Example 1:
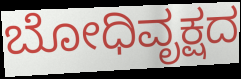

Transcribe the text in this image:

ಬೋಧಿವೃಕ್ಷದ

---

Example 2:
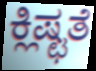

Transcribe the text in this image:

ಕ್ಲಿಷ್ಟತೆ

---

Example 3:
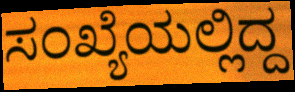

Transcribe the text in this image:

ಸಂಖ್ಯೆಯಲ್ಲಿದ್ದ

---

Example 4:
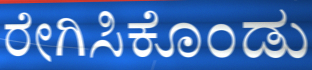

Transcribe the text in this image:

ರೇಗಿಸಿಕೊಂಡು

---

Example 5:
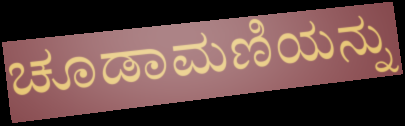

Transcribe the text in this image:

ಚೂಡಾಮಣಿಯನ್ನು